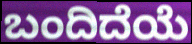
ಬಂದಿದೆಯೆ